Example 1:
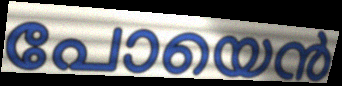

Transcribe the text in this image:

പോയെൻ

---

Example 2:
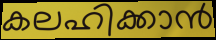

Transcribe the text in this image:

കലഹിക്കാൻ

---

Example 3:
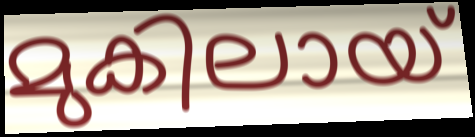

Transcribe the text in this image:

മുകിലായ്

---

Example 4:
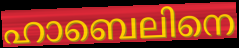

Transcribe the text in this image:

ഹാബെലിനെ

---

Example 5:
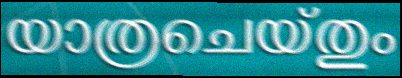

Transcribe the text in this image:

യാത്രചെയ്തും